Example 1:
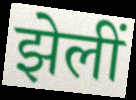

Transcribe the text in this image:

झेलीं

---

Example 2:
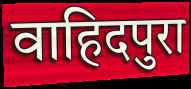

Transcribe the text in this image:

वाहिदपुरा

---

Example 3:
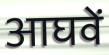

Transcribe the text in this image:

आघवें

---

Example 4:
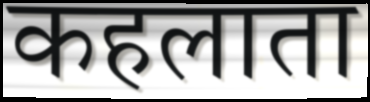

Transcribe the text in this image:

कहलाता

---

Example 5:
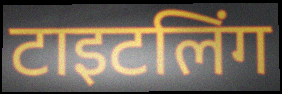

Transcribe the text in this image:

टाइटलिंग